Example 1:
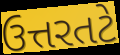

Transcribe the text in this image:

ઉત્તરતટે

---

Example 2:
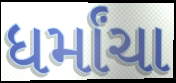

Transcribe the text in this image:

ધર્માંચા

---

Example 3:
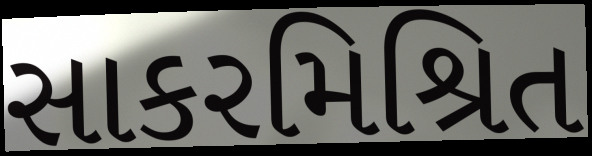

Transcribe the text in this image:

સાકરમિશ્રિત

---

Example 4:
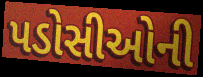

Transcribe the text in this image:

પડોસીઓની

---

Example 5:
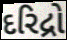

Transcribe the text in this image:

દરિદ્રો